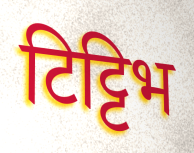
टिट्टिभ